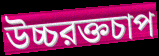
উচ্চরক্তচাপ